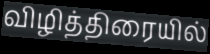
விழித்திரையில்